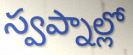
స్వప్నాల్లో